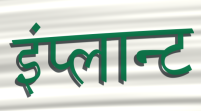
इंप्लान्ट